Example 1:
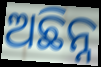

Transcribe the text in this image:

ଅଛିନ୍ନ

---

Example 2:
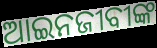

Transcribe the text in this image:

ଆଇନଜୀବୀଙ୍କ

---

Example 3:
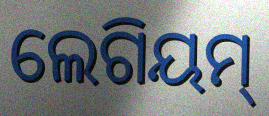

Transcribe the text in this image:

ଲେଗିୟମ୍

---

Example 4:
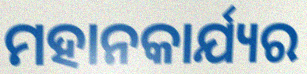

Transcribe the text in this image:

ମହାନକାର୍ଯ୍ୟର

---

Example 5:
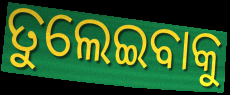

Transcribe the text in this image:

ତୁଲେଇବାକୁ